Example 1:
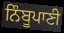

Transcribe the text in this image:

ਨਿੰਬੂਪਾਣੀ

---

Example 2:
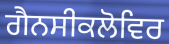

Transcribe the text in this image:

ਗੈਨਸੀਕਲੋਵਿਰ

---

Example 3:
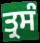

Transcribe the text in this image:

ਤ੍ਰਸੰ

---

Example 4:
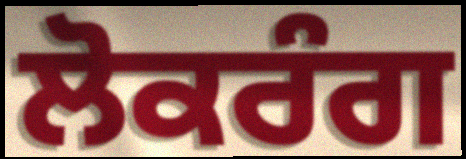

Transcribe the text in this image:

ਲੋਕਰੰਗ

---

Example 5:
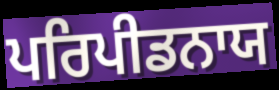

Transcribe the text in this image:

ਪਰਿਪੀਡਨਾਯ